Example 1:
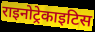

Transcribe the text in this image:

राइनोट्रेकाइटिस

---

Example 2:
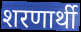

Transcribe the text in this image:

शरणार्थी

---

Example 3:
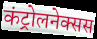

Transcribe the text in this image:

कंट्रोलनेक्सस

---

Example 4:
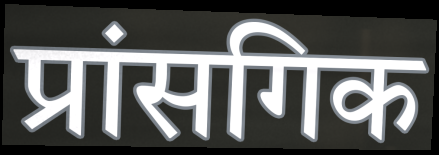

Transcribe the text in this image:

प्रांसगिक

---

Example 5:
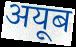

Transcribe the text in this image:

अयूब